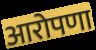
आरोपणा